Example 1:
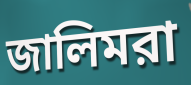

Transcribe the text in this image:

জালিমরা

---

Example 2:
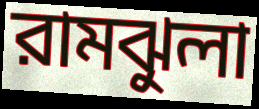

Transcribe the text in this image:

রামঝুলা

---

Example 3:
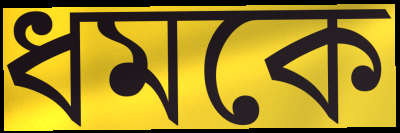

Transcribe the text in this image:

ধমকে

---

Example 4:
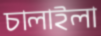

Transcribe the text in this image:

চালাইলা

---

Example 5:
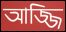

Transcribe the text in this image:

আজ্জি